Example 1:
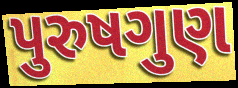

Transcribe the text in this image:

પુરુષગુણ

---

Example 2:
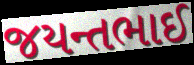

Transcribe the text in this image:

જયન્તભાઈ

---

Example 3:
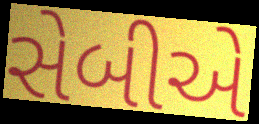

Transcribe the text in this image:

સેબીએ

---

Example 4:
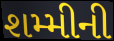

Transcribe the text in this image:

શમ્મીની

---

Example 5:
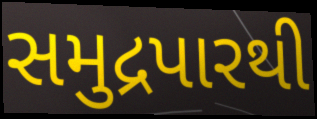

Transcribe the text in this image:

સમુદ્રપારથી